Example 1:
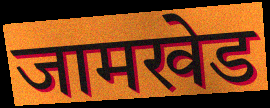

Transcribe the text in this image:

जामखेड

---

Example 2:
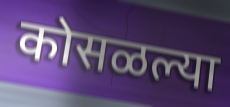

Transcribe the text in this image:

कोसळल्या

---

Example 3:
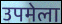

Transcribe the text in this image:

उपमेला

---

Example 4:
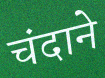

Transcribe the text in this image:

चंदाने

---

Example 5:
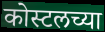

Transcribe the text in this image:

कोस्टलच्या